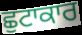
ਛੁਟਾਕਾਰ